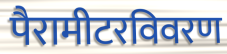
पैरामीटरविवरण